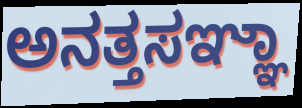
ಅನತ್ತಸಞ್ಞಾ